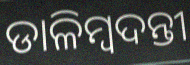
ଡାଳିମ୍ବଦନ୍ତୀ